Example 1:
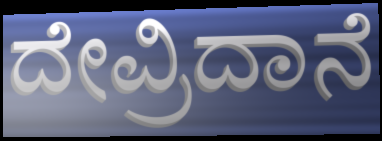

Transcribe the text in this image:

ದೇವ್ರಿದಾನೆ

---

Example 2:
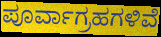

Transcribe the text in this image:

ಪೂರ್ವಾಗ್ರಹಗಳಿವೆ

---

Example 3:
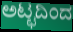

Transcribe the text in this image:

ಅಟ್ಟದಿಂದ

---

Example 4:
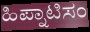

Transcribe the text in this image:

ಹಿಪ್ನಾಟಿಸಂ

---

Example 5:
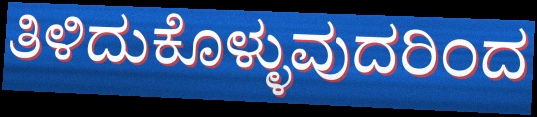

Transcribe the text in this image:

ತಿಳಿದುಕೊಳ್ಳುವುದರಿಂದ